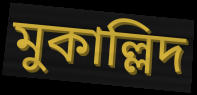
মুকাল্লিদ